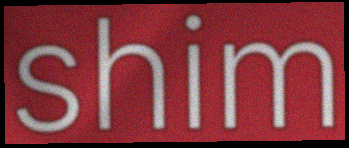
shim